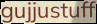
gujjustuff